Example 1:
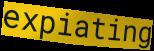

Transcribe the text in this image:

expiating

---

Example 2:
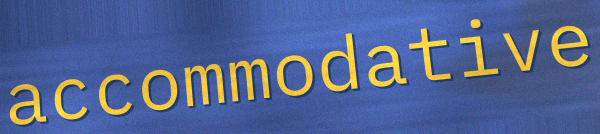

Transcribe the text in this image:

accommodative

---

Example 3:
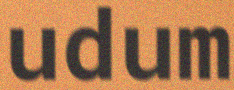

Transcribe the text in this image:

udum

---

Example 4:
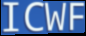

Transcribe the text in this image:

ICWF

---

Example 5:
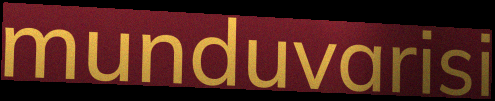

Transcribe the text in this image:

munduvarisi